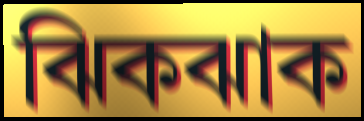
ঝিকঝাক